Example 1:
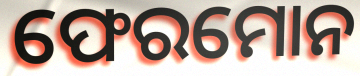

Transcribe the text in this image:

ଫେରମୋନ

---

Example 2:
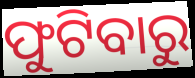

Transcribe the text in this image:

ଫୁଟିବାରୁ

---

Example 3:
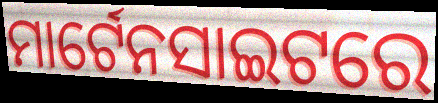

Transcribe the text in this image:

ମାର୍ଟେନସାଇଟରେ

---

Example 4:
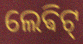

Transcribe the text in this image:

ଲେଵିଟ୍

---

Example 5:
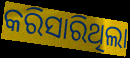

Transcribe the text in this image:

କରିସାରିଥିଲା